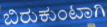
ಬಿರುಕುಂಟಾಗಿ